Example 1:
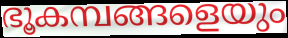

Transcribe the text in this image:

ഭൂകമ്പങ്ങളെയും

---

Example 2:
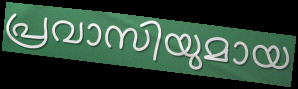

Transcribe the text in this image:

പ്രവാസിയുമായ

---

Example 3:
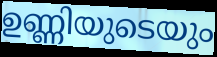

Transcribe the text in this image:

ഉണ്ണിയുടെയും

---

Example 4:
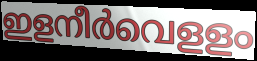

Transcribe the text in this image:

ഇളനീർവെളളം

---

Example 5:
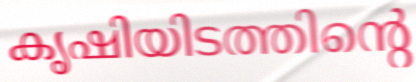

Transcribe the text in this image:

കൃഷിയിടത്തിന്റെ